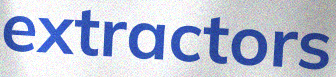
extractors